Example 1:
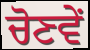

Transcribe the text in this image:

ਚੋਣਵੇਂ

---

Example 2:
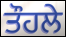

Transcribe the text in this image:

ਤੌਹਲੇ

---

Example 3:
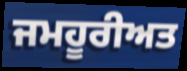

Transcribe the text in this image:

ਜਮਹੂਰੀਅਤ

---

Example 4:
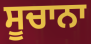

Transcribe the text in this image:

ਸੂਚਾਨਾ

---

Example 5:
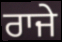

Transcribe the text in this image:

ਰਾਜੇ